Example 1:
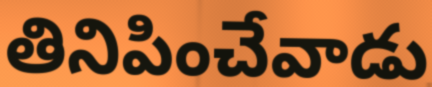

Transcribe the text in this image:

తినిపించేవాడు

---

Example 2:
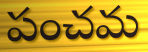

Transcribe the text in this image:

పంచమ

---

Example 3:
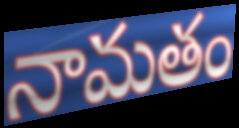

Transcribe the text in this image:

నామతం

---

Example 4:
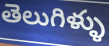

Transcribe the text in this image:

తెలుగిళ్ళు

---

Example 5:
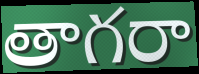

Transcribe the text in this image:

తాగరా